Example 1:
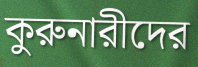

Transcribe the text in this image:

কুরুনারীদের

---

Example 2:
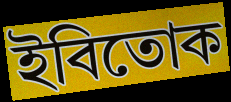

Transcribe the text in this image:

ইবিতোক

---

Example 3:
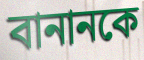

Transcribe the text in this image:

বানানকে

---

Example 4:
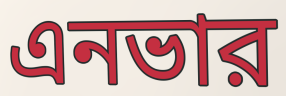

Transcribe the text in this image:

এনভার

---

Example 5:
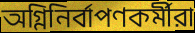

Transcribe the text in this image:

অগ্নিনির্বাপণকর্মীরা